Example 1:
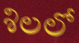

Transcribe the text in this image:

శిలలో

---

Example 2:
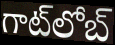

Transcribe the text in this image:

గాట్‍లోబ్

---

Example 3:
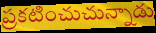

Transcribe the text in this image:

ప్రకటించుచున్నాడు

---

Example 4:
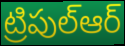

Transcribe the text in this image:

ట్రిపుల్ఆర్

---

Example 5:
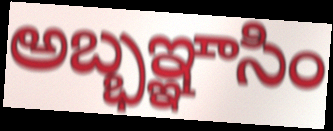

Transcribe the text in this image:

అబ్భఞ్ఞాసిం